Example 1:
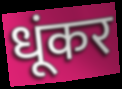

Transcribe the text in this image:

धूंकर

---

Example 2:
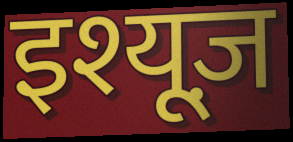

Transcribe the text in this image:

इश्यूज़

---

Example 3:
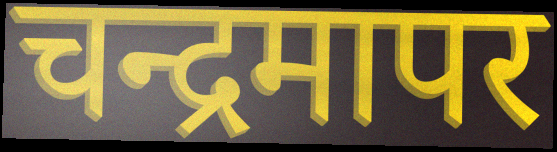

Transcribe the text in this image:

चन्द्रमापर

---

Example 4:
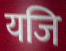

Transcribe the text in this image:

यजि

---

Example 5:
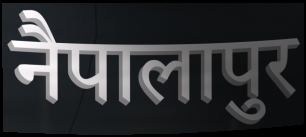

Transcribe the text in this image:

नैपालापुर